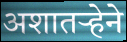
अशातऱ्हेने